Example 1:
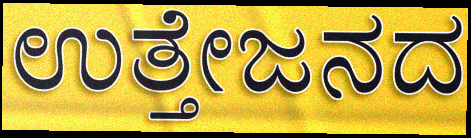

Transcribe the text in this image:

ಉತ್ತೇಜನದ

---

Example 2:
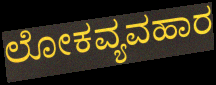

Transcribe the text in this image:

ಲೋಕವ್ಯವಹಾರ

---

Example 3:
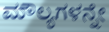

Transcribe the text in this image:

ಮೌಲ್ಯಗಳನ್ನೇ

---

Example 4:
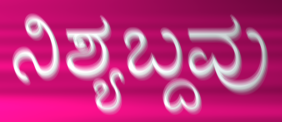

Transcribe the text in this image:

ನಿಶ್ಯಬ್ದವು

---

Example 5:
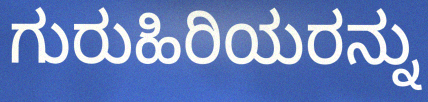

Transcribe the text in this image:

ಗುರುಹಿರಿಯರನ್ನು